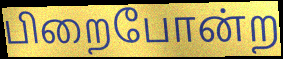
பிறைபோன்ற